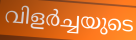
വിളർച്ചയുടെ